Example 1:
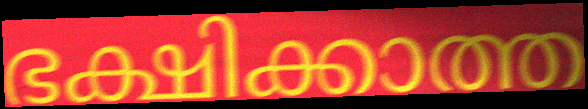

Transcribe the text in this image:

ഭക്ഷിക്കാത്ത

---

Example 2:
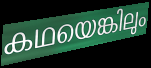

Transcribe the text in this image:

കഥയെങ്കിലും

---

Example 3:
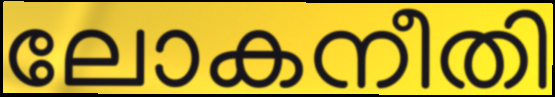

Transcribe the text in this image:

ലോകനീതി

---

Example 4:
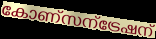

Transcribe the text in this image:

കോണ്സന്ട്രേഷന്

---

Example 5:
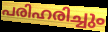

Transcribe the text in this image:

പരിഹരിച്ചും